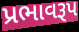
પ્રભાવરૂપ